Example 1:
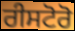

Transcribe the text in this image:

ਰੀਸਟੋਰੋ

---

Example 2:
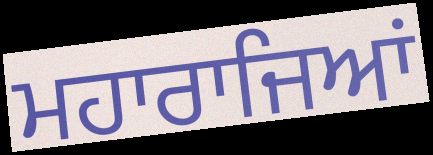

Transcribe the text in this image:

ਮਹਾਰਾਜਿਆਂ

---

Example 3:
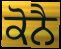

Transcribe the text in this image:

ਕੋਨੈ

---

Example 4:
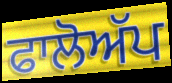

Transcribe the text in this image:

ਫਾਲੋਅੱਪ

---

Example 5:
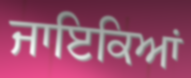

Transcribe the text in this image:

ਜਾਇਕਿਆਂ